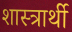
शास्त्रार्थी